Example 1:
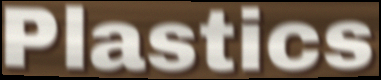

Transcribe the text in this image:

Plastics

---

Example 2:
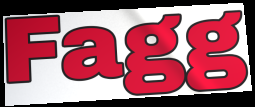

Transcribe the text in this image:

Fagg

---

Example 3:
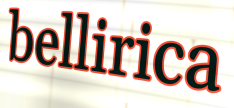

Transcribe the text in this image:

bellirica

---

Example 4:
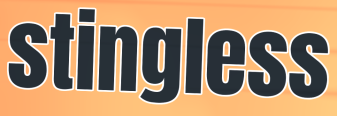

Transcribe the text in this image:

stingless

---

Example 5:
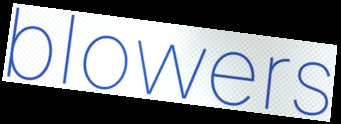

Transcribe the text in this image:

blowers